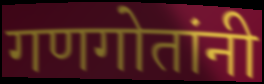
गणगोतांनी